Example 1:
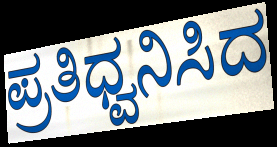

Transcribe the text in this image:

ಪ್ರತಿಧ್ವನಿಸಿದ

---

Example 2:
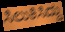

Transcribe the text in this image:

ಸಿಲುಕಿಸಿದ್ದು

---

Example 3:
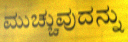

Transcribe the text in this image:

ಮುಚ್ಚುವುದನ್ನು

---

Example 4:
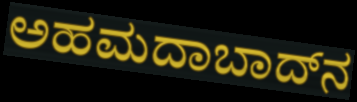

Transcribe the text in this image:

ಅಹಮದಾಬಾದ್‌ನ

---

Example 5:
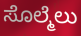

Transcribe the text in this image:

ಸೊಲ್ಮೆಲು